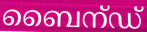
ബൈന്ഡ്